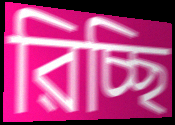
ৱিচ্ছি